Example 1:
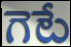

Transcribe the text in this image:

గెటే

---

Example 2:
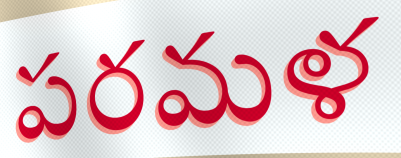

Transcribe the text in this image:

పరమళ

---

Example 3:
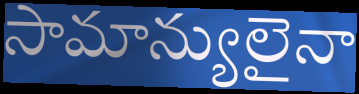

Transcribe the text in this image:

సామాన్యులైనా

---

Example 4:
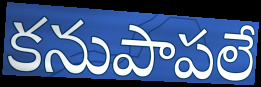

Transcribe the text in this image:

కనుపాపలే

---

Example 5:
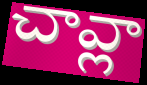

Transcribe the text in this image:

చావ్లా